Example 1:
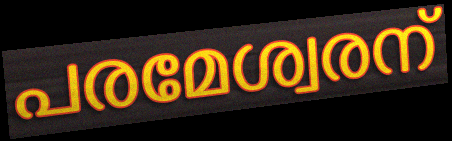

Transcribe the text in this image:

പരമേശ്വരന്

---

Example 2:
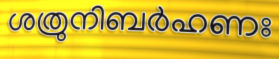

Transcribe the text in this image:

ശത്രുനിബർഹണഃ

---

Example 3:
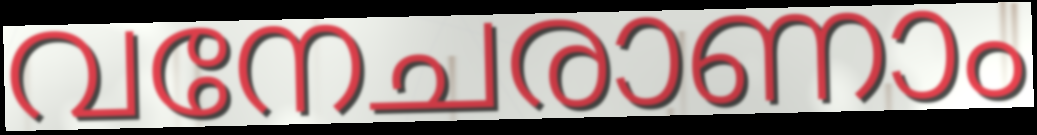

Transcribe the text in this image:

വനേചരാണാം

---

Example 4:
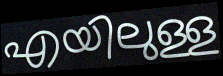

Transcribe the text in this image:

എയിലുള്ള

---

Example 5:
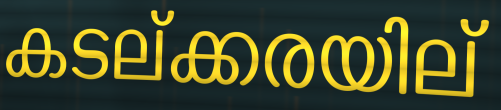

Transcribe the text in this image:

കടല്ക്കരയില്